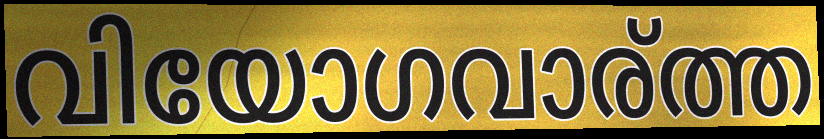
വിയോഗവാര്ത്ത